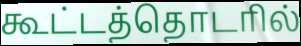
கூட்டத்தொடரில்